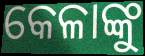
କେଳାଙ୍କୁ